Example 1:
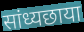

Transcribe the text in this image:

सांध्यछाया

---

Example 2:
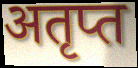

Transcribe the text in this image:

अतृप्त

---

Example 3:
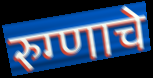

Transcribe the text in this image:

रुग्णाचे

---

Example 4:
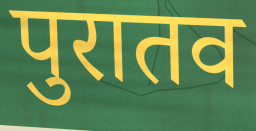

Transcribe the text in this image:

पुरातव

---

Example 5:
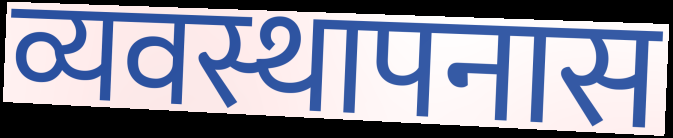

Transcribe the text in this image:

व्यवस्थापनास